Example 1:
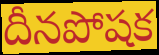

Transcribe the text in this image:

దీనపోషక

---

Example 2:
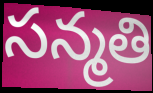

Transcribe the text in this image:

సన్మతి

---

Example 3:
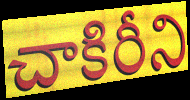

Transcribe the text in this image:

చాకిరీని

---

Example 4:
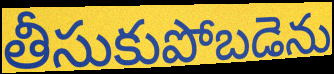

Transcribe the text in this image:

తీసుకుపోబడెను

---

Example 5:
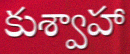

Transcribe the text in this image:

కుశ్వాహా